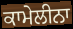
ਕਾਮੇਲੀਨਾ